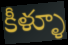
కీళ్ళూ